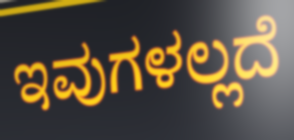
ಇವುಗಳಲ್ಲದೆ